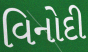
વિનોદી